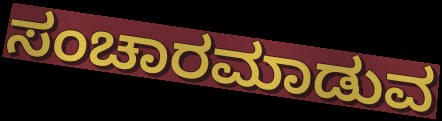
ಸಂಚಾರಮಾಡುವ